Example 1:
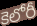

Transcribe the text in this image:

కెలోరీ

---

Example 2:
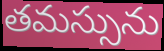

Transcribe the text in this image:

తమస్సును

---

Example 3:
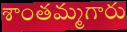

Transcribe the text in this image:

శాంతమ్మగారు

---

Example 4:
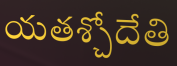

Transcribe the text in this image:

యతశ్చోదేతి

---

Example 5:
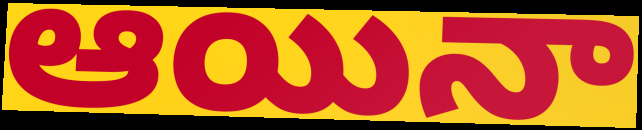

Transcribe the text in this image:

ఆయినా